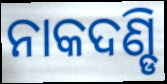
ନାକଦଣ୍ଡି